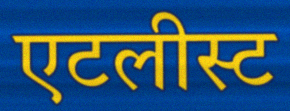
एटलीस्ट